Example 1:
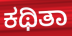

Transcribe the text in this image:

ಕಥಿತಾ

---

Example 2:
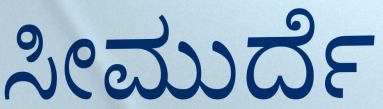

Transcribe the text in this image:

ಸೀಮುರ್ದೆ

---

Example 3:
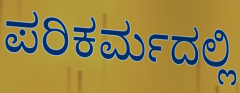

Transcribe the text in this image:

ಪರಿಕರ್ಮದಲ್ಲಿ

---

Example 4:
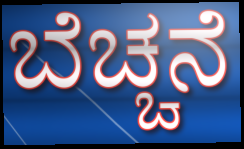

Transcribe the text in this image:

ಬೆಚ್ಚನೆ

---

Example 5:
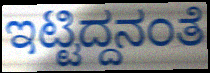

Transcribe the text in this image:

ಇಟ್ಟಿದ್ದನಂತೆ